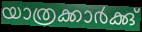
യാത്രക്കാർക്കു്